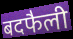
बदफैली